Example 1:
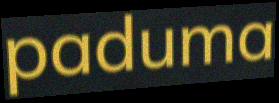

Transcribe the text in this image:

paduma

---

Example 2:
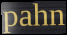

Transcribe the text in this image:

pahn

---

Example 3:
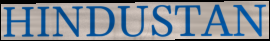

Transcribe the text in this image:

HINDUSTAN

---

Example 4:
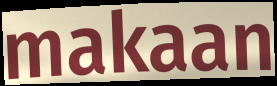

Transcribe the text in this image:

makaan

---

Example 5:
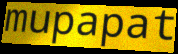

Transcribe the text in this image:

mupapat